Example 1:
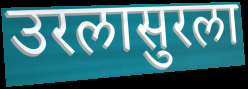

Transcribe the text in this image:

उरलासुरला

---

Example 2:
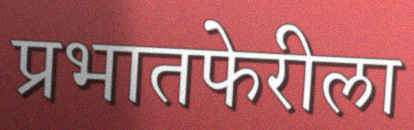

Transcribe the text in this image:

प्रभातफेरीला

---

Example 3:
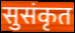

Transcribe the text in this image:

सुसंकृत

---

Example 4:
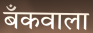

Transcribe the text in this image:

बँकवाला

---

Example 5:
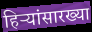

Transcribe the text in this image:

हिऱ्यांसारख्या